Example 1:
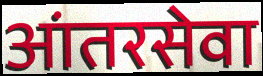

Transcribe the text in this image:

आंतरसेवा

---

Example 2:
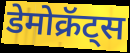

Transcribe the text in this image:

डेमोक्रॅट्स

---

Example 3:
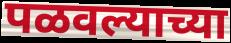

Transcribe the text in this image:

पळवल्याच्या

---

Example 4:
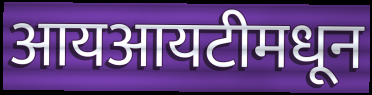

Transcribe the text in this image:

आयआयटीमधून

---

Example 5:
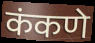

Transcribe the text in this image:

कंकणे